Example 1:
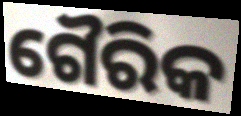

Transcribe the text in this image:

ଗୈରିକ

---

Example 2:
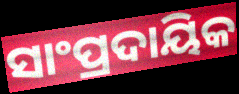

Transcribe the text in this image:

ସାଂପ୍ରଦାୟିକ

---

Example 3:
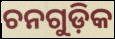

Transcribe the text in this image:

ଚନଗୁଡ଼ିକ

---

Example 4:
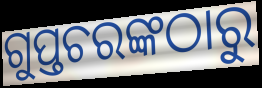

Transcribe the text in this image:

ଗୁପ୍ତଚରଙ୍କଠାରୁ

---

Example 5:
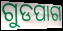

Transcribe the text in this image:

ଗୁଡପାଗ